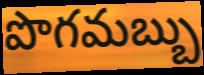
పొగమబ్బు